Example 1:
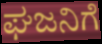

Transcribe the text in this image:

ಘಜನಿಗೆ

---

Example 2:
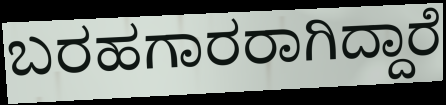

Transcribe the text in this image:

ಬರಹಗಾರರಾಗಿದ್ದಾರೆ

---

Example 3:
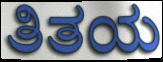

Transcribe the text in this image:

ತಿತಯ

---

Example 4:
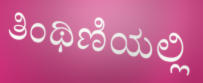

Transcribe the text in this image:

ತಿಂಥಿಣಿಯಲ್ಲಿ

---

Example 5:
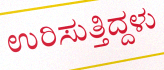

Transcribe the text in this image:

ಉರಿಸುತ್ತಿದ್ದಳು